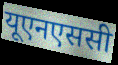
यूएनएससी